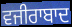
ਵਜੀਰਾਬਾਦ